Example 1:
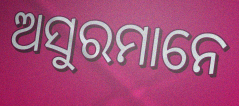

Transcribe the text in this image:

ଅସୁରମାନେ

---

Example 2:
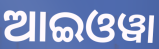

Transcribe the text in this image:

ଆଇଓୱା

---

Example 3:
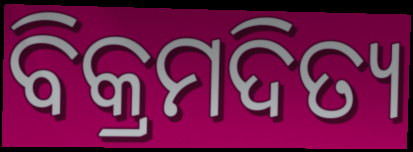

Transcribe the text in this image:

ବିକ୍ରମଦିତ୍ୟ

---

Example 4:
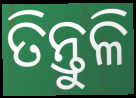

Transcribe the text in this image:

ତିନ୍ତୁଳି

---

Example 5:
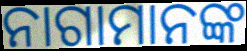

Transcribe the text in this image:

ନାଗାମାନଙ୍କ